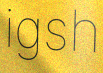
igsh